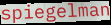
spiegelman